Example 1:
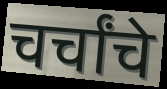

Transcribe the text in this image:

चर्चांचे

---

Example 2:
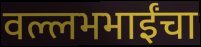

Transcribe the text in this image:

वल्लभभाईंचा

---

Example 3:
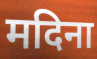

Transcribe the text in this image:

मदिना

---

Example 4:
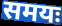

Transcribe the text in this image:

समयः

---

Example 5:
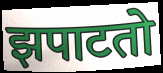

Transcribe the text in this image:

झपाटतो